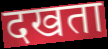
दखता